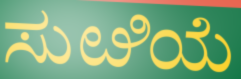
ಸುೞಿಯೆ